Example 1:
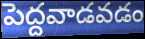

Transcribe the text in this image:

పెద్దవాడవడం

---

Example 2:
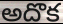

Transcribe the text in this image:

అదొక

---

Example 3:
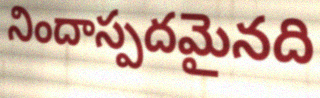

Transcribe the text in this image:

నిందాస్పదమైనది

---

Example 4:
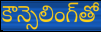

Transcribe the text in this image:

కౌన్సెలింగ్‌తో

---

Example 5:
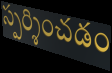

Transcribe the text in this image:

స్పర్శించడం